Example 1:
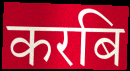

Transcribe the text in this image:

करबि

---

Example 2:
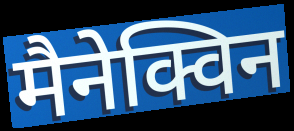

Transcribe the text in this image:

मैनेक्विन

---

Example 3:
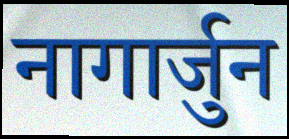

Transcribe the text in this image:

नागार्जुन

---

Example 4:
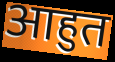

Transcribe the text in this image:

आहुत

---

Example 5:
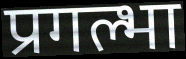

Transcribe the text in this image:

प्रगल्भा